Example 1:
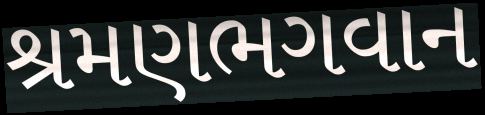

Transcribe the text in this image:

શ્રમણભગવાન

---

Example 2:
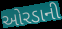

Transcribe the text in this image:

ઓરડાની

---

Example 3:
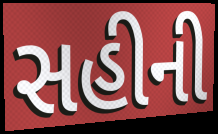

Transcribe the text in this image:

સહીની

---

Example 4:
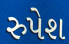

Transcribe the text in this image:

રુપેશ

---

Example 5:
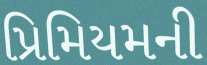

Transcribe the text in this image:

પ્રિમિયમની